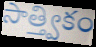
సాత్త్వికం